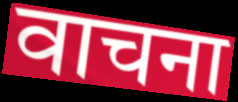
वाचना